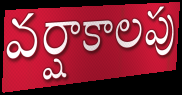
వర్షాకాలపు